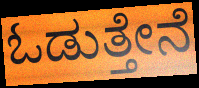
ಓಡುತ್ತೇನೆ